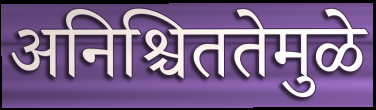
अनिश्चिततेमुळे